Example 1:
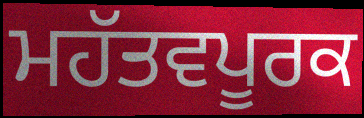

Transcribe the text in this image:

ਮਹੱਤਵਪੂਰਕ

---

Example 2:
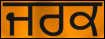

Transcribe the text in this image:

ਜਰਕ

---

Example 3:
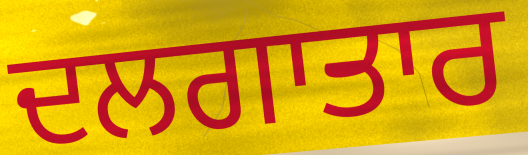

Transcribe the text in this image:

ਦਲਗਾਤਾਰ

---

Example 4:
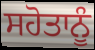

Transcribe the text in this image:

ਸਹੋਤਾਨੂੰ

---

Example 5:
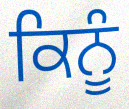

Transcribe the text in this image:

ਕਿਨੂੰ